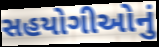
સહયોગીઓનું